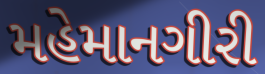
મહેમાનગીરી